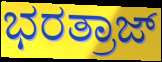
ಭರತ್ರಾಜ್